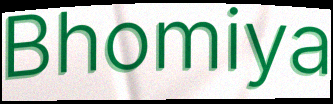
Bhomiya